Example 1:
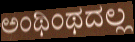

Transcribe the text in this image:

ಅಂಥಿಂಥದಲ್ಲ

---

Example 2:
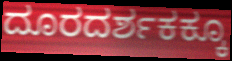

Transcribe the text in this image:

ದೂರದರ್ಶಕಕ್ಕೂ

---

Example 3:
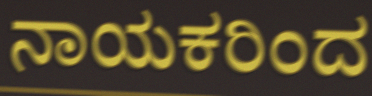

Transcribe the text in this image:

ನಾಯಕರಿಂದ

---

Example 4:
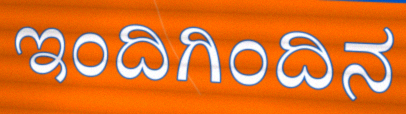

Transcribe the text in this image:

ಇಂದಿಗಿಂದಿನ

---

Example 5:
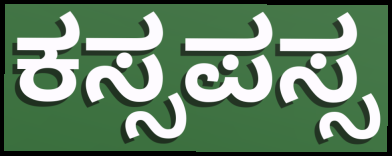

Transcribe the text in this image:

ಕಸ್ಸಪಸ್ಸ